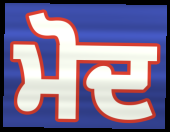
ਮੋਦ